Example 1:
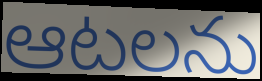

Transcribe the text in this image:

ఆటలను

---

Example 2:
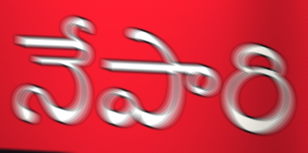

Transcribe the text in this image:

నేపారి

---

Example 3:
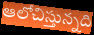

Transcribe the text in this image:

ఆలోచిస్తున్నది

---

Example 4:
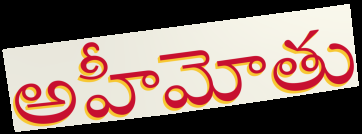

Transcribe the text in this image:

అహీమోతు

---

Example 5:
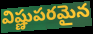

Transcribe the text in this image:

విష్ణుపరమైన